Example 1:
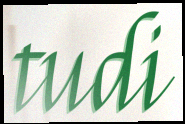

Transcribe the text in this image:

tudi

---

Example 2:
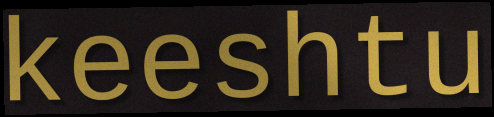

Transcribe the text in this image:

keeshtu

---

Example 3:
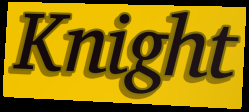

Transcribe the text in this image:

Knight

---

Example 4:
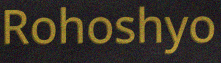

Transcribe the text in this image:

Rohoshyo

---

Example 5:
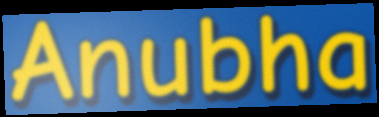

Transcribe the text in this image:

Anubha